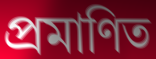
প্ৰমাণিত